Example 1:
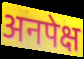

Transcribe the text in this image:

अनपेक्ष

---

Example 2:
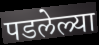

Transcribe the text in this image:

पडलेल्या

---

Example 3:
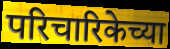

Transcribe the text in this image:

परिचारिकेच्या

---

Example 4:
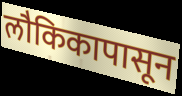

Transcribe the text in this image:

लौकिकापासून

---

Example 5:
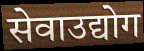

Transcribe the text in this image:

सेवाउद्योग